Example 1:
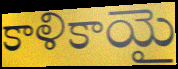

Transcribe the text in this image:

కాళికాయై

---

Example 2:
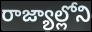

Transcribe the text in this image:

రాజ్యాల్లోని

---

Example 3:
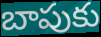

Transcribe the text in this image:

బాపుకు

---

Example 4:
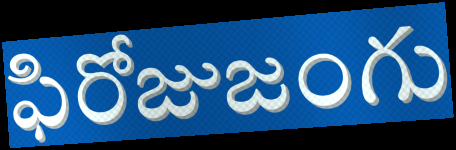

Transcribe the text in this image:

ఫిరోజుజంగు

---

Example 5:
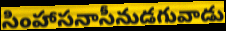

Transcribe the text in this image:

సింహాసనాసీనుడగువాడు